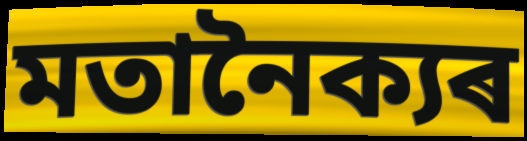
মতানৈক্যৰ